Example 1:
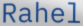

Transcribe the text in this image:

Rahel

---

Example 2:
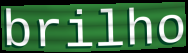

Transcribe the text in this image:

brilho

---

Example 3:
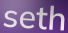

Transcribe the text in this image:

seth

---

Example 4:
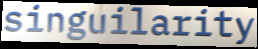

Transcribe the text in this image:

singuilarity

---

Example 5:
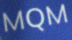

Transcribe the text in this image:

MQM